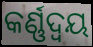
କର୍ଣ୍ଣଦ୍ୱୟ